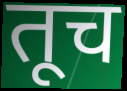
तूच